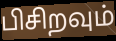
பிசிறவும்